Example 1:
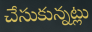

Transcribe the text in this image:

చేసుకున్నట్లు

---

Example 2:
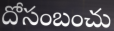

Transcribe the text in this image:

దోసంబంచు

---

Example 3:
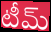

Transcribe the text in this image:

టీమ్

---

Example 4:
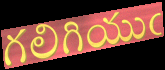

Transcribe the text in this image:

గలిగియుఁ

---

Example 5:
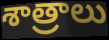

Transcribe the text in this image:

శాత్రాలు